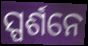
ସ୍ପର୍ଶନେ